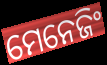
ମେନେଜିଂ